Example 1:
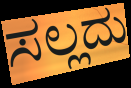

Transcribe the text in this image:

ಸಲ್ಲದು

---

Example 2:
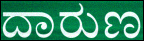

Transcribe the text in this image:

ದಾರುಣ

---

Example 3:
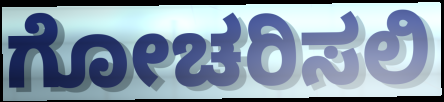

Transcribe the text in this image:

ಗೋಚರಿಸಲಿ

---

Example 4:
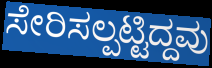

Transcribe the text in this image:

ಸೇರಿಸಲ್ಪಟ್ಟಿದ್ದವು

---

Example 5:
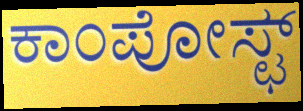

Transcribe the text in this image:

ಕಾಂಪೋಸ್ಟ್